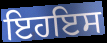
ਇਹਇਸ